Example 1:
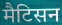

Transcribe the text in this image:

मैटिसन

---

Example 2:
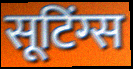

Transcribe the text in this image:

सूटिंग्स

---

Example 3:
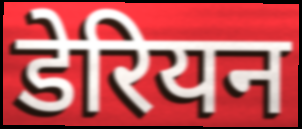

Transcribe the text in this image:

डेरियन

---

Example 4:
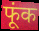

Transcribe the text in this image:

फूंक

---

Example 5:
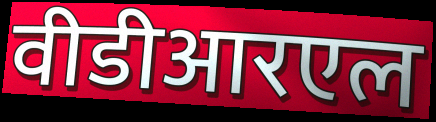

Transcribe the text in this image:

वीडीआरएल